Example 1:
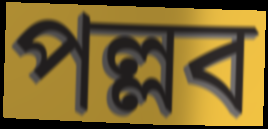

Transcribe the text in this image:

পল্লব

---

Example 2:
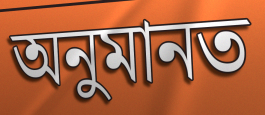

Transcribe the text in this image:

অনুমানত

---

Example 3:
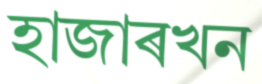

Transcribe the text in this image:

হাজাৰখন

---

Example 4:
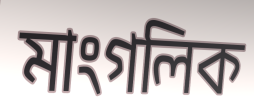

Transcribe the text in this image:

মাংগলিক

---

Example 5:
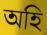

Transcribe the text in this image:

অহি